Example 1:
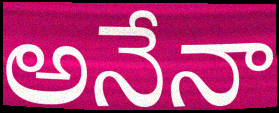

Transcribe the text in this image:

అనేనా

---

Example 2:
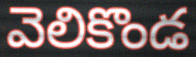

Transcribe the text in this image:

వెలికొండ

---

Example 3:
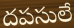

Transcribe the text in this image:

దపసులే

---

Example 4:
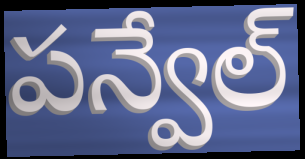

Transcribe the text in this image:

పన్వేల్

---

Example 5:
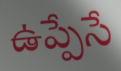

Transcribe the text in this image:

ఉప్పేసే